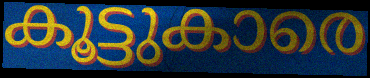
കൂട്ടുകാരെ